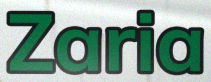
Zaria